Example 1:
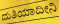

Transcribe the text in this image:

ದುತಿಯಾದೀನಿ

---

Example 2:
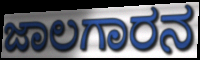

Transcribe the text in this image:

ಜಾಲಗಾರನ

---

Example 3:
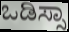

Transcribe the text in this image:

ಒಡಿಸ್ಸಾ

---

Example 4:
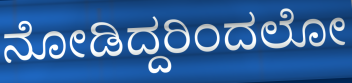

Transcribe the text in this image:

ನೋಡಿದ್ದರಿಂದಲೋ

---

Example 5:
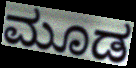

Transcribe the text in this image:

ಮೂಡ